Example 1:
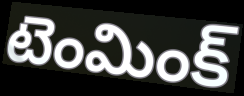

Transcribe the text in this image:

టెంమింక్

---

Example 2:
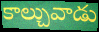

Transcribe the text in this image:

కాల్చువాడు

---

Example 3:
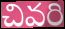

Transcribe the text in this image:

చివరి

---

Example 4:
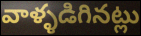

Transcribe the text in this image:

వాళ్ళడిగినట్లు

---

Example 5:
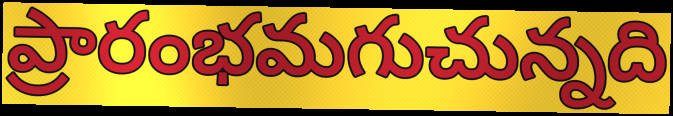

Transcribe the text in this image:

ప్రారంభమగుచున్నది